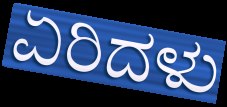
ಏರಿದಳು